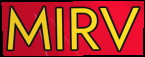
MIRV